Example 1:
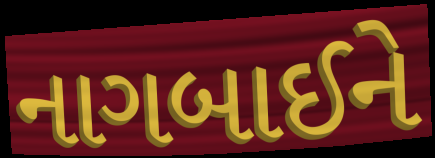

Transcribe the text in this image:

નાગબાઈને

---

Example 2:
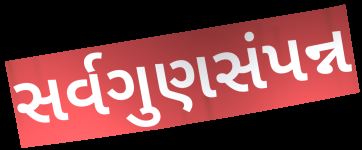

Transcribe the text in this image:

સર્વગુણસંપન્ન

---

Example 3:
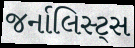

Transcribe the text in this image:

જર્નાલિસ્ટ્સ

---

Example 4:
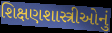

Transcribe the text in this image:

શિક્ષણશાસ્ત્રીઓનું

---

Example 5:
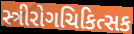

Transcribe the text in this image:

સ્ત્રીરોગચિકિત્સક